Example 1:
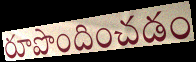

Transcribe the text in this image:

రూపొందించడం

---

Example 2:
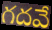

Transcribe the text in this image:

గదవే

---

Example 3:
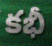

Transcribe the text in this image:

కభీ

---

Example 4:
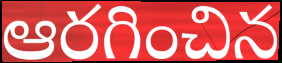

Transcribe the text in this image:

ఆరగించిన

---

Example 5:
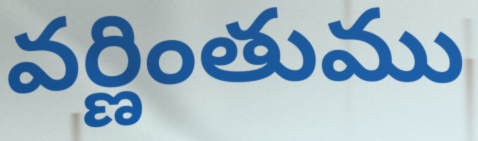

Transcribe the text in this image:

వర్ణింతుము